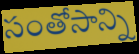
సంతోసాన్ని